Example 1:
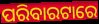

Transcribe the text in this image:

ପରିବାରଟାରେ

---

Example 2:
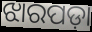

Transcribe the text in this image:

ଝାରପଡ଼ା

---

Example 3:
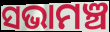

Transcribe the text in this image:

ସଭାମଞ୍ଚ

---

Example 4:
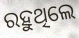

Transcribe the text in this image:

ରହୁଥିଲେ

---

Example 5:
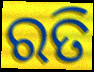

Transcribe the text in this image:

ରତି